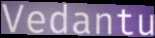
Vedantu